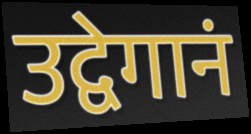
उद्वेगानं